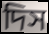
দিস